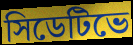
সিডেটিভে